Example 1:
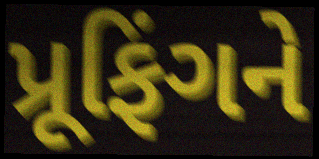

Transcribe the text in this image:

પ્રૂફિંગને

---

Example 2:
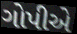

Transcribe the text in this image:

ગોપીએ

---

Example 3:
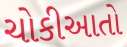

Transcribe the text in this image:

ચોકીઆતો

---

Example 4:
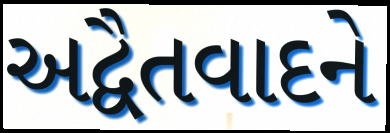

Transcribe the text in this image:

અદ્વૈતવાદને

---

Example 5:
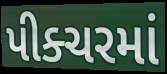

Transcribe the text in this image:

પીક્ચરમાં